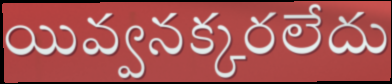
యివ్వనక్కరలేదు